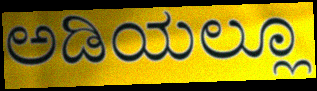
ಅಡಿಯಲ್ಲೂ